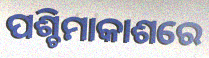
ପଶ୍ଚିମାକାଶରେ